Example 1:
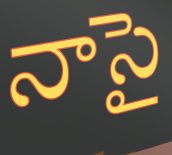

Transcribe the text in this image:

నాసై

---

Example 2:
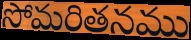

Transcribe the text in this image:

సోమరితనము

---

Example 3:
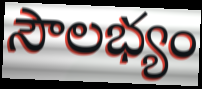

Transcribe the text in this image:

సౌలభ్యం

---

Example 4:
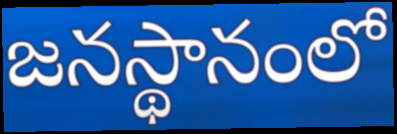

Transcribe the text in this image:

జనస్థానంలో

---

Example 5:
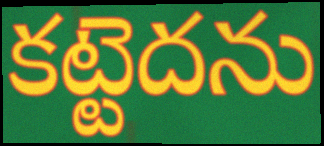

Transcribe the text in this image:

కట్టెదను